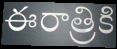
ఈరాత్రికి